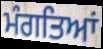
ਮੰਗਤਿਆਂ